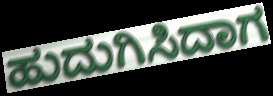
ಹುದುಗಿಸಿದಾಗ